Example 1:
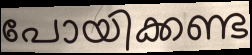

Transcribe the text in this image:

പോയിക്കണ്ട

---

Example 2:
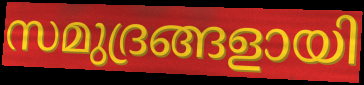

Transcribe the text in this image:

സമുദ്രങ്ങളായി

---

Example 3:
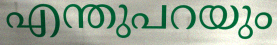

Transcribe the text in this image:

എന്തുപറയും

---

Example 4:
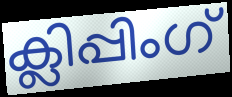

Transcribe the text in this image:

ക്ലിപ്പിംഗ്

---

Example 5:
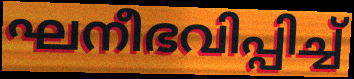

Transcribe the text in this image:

ഘനീഭവിപ്പിച്ച്